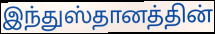
இந்துஸ்தானத்தின்